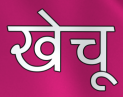
खेचू